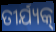
ତୀର୍ଯ୍ୟକ୍